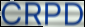
CRPD